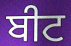
ਬੀਟ